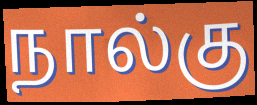
நால்கு